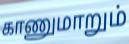
காணுமாறும்